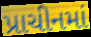
પ્રાચીનમાં